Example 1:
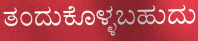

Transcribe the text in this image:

ತಂದುಕೊಳ್ಳಬಹುದು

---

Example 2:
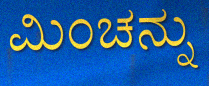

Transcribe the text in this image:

ಮಿಂಚನ್ನು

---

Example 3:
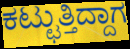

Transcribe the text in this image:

ಕಟ್ಟುತ್ತಿದ್ದಾಗ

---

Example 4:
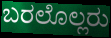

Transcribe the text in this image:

ಬರಲೊಲ್ಲರು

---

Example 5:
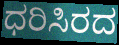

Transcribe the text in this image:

ಧರಿಸಿರದ